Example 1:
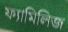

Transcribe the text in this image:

ফ্যামিলিজ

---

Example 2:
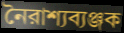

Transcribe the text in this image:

নৈরাশ্যব্যঞ্জক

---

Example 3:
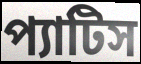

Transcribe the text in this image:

প্যাটিস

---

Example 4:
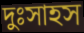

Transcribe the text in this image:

দুঃসাহস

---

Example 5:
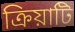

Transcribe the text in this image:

ক্রিয়াটি